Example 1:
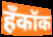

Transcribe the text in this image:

हँकॉक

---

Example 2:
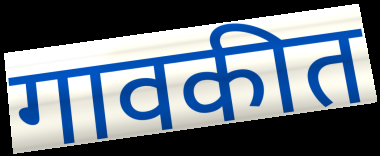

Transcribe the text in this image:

गावकीत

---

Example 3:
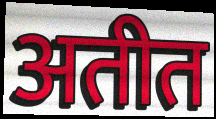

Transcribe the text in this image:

अतीत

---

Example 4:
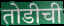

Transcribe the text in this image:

तोडीची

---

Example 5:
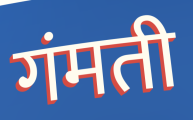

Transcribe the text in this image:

गंमती